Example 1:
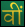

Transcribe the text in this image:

वीं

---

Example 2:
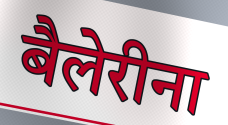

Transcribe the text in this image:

बैलेरीना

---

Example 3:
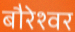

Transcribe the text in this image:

बौरेश्वर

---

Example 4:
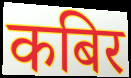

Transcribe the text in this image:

कबिर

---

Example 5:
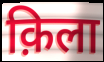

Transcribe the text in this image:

क़िला